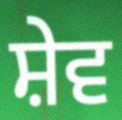
ਸ਼ੇਵ